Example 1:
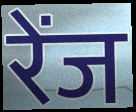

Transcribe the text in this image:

रेंज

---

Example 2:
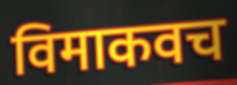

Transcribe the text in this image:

विमाकवच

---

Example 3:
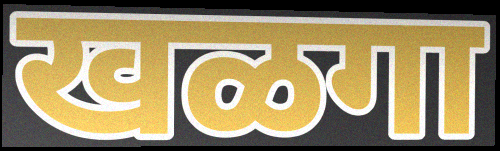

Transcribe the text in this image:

खळगा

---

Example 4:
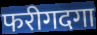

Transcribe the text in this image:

फरीगदगा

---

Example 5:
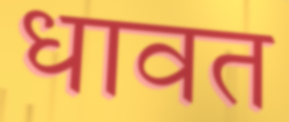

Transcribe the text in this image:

धावत